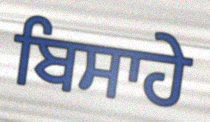
ਬਿਸਾਹੇ